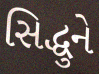
સિદ્ધુને